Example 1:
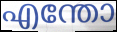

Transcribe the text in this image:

എന്തോ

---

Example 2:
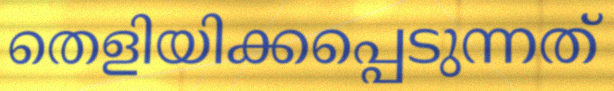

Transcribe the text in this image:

തെളിയിക്കപ്പെടുന്നത്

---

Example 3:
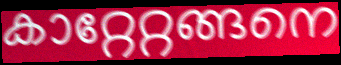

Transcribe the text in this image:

കാറ്റേറ്റങ്ങനെ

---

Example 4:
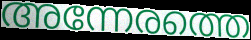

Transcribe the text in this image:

അന്നേരത്തെ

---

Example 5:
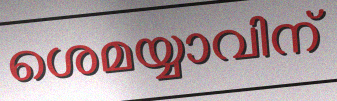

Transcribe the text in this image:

ശെമയ്യാവിന്